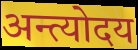
अन्त्योदय